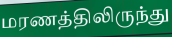
மரணத்திலிருந்து